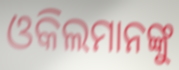
ଓକିଲମାନଙ୍କୁ